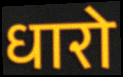
धारो